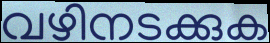
വഴിനടക്കുക